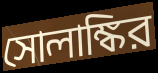
সোলাঙ্কির